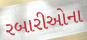
રબારીઓના